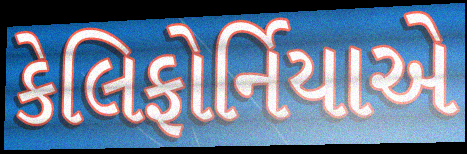
કેલિફોર્નિયાએ